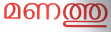
മണത്തു